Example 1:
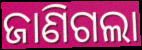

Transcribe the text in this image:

ଜାଣିଗଲା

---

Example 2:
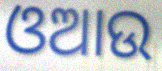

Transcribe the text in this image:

ଓଆଉ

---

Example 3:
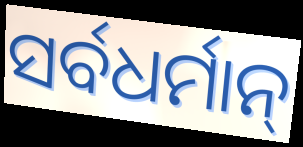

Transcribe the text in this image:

ସର୍ବଧର୍ମାନ୍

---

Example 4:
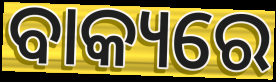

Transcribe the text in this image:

ବାକ୍ୟରେ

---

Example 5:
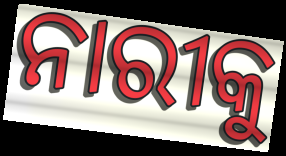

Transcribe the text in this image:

ନାରୀକୁ